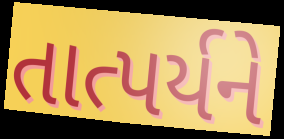
તાત્પર્યને